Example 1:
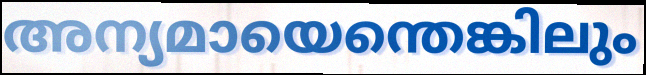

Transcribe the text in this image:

അന്യമായെന്തെങ്കിലും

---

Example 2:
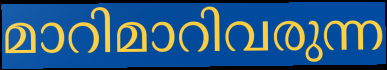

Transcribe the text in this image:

മാറിമാറിവരുന്ന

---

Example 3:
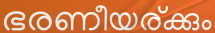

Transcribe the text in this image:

ഭരണീയര്ക്കും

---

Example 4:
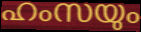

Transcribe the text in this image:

ഹംസയും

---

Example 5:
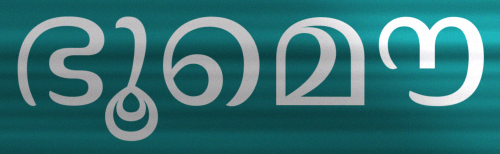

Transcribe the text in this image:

ഭൂമൌ